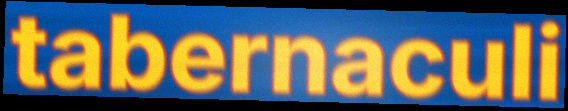
tabernaculi